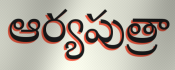
ఆర్యపుత్రా